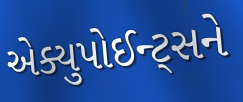
એક્યુપોઈન્ટ્સને